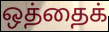
ஒத்தைக்